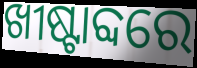
ଖୀଷ୍ଟାବ୍ଦରେ